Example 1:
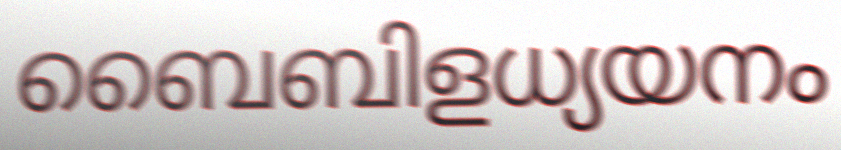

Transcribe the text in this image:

ബൈബിളധ്യയനം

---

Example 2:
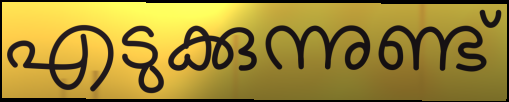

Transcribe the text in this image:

എടുക്കുന്നുണ്ട്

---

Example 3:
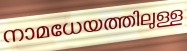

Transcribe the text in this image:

നാമധേയത്തിലുള്ള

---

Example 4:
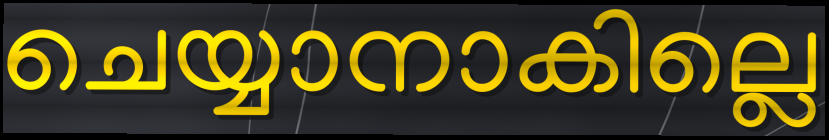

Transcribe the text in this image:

ചെയ്യാനാകില്ലെ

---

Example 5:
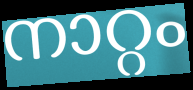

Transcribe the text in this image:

നാറ്റം